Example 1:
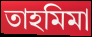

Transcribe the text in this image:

তাহমিমা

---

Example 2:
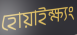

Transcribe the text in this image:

হোয়াইক্ষ্যং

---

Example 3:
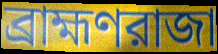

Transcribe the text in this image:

ব্রাহ্মণরাজা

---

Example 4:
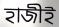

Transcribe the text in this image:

হাজীই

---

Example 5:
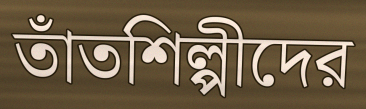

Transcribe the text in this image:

তাঁতশিল্পীদের